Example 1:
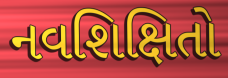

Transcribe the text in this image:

નવશિક્ષિતો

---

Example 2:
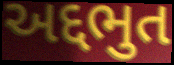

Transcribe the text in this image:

અદ્દભુત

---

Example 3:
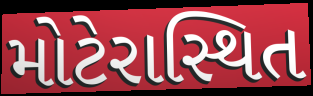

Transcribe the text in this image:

મોટેરાસ્થિત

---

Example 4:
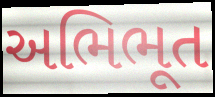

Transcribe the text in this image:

અભિભૂત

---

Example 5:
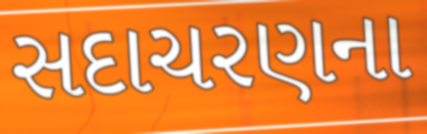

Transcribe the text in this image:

સદાચરણના